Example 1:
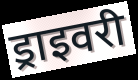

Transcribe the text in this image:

ड्राइवरी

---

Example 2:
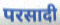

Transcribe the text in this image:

परसादी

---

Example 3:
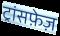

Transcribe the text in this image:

ट्रांसफ़ेज़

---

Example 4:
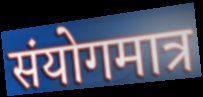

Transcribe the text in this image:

संयोगमात्र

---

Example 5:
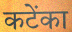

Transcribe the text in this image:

कटेंका